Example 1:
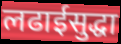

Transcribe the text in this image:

लढाईसुद्धा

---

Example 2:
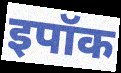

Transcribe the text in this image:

इपॉक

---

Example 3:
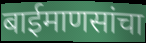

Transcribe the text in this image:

बाईमाणसांचा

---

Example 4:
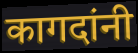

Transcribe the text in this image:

कागदांनी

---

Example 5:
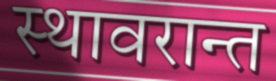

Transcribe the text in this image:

स्थावरान्त